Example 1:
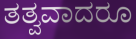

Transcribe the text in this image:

ತತ್ವವಾದರೂ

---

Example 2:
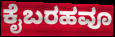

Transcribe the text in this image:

ಕೈಬರಹವೂ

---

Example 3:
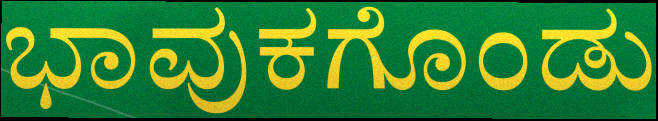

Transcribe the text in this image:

ಭಾವುಕಗೊಂಡು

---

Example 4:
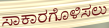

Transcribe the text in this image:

ಸಾಕಾರಗೊಳಿಸಲು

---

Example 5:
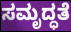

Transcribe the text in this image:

ಸಮೃದ್ಧತೆ